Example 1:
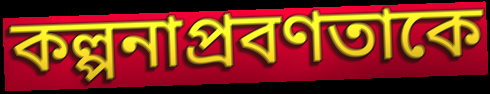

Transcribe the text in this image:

কল্পনাপ্রবণতাকে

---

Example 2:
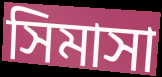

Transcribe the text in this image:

সিমাসা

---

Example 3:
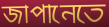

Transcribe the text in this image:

জাপানেতে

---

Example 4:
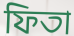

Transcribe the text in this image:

ফিতা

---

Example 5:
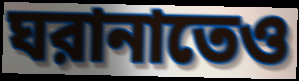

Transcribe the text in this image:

ঘরানাতেও